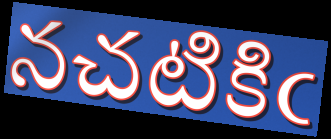
నచటికిఁ